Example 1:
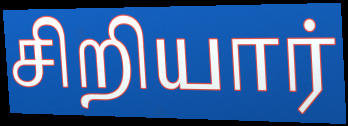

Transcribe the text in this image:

சிறியார்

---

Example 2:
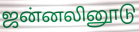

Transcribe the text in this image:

ஜன்னலினூடு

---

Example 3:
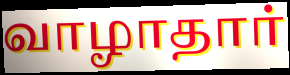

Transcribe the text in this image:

வாழாதார்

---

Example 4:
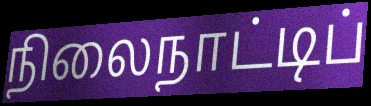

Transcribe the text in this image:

நிலைநாட்டிப்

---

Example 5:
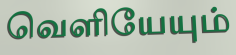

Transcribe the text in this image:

வெளியேயும்